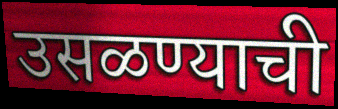
उसळण्याची